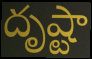
దృష్టా